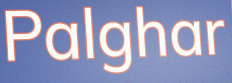
Palghar